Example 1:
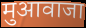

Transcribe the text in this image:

मुआवाजा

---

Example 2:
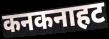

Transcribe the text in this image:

कनकनाहट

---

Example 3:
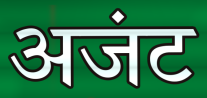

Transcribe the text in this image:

अजंट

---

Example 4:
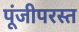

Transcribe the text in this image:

पूंजीपरस्त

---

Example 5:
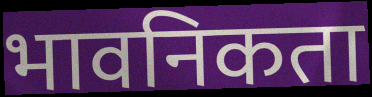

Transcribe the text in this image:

भावनिकता